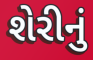
શેરીનું